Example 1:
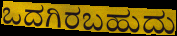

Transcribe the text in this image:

ಒದಗಿರಬಹುದು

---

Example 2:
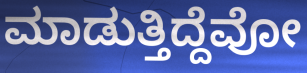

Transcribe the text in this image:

ಮಾಡುತ್ತಿದ್ದೆವೋ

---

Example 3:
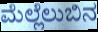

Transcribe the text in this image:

ಮೆಲ್ಲೆಲುಬಿನ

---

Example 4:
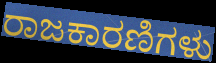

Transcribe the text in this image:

ರಾಜಕಾರಣಿಗಳು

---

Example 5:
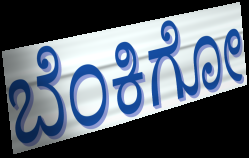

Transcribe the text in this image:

ಬೆಂಕಿಗೋ